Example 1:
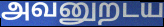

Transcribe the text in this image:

அவனுறடய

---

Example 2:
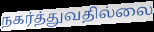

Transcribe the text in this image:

நகர்த்துவதில்லை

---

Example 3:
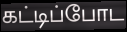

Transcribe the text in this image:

கட்டிப்போட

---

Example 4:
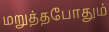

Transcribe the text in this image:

மறுத்தபோதும்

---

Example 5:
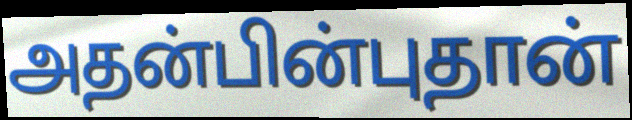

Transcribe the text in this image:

அதன்பின்புதான்